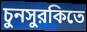
চুনসুরকিতে